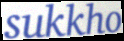
sukkho